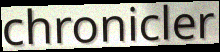
chronicler